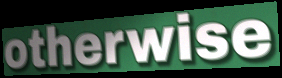
otherwise